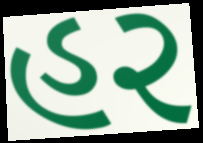
હર